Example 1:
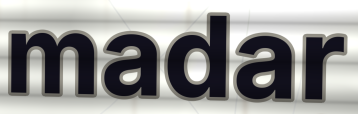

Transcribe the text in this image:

madar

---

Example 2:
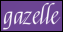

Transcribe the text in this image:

gazelle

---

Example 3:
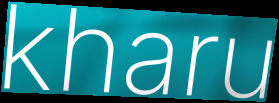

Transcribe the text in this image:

kharu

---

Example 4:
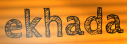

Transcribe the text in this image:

ekhada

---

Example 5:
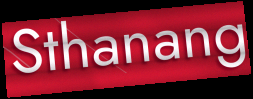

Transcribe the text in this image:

Sthanang